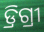
ଡ୍ରିଗ୍ରୀ